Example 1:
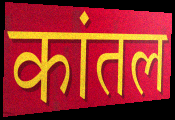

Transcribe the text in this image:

कांतल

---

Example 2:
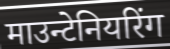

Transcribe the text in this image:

माउन्टेनियरिंग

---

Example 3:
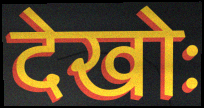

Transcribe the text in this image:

देखोः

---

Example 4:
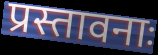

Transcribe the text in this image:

प्रस्तावनाः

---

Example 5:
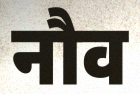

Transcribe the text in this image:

नौव